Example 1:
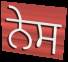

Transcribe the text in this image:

ਨੇਸ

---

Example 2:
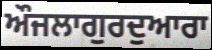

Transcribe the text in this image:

ਔਜਲਾਗੁਰਦੁਆਰਾ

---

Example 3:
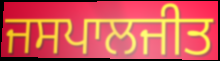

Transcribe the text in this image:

ਜਸਪਾਲਜੀਤ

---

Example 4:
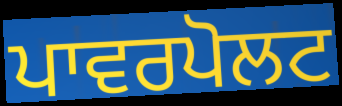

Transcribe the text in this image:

ਪਾਵਰਪੋਲਟ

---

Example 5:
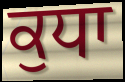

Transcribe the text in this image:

ਕੁਧਾ